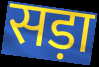
सड़ा